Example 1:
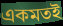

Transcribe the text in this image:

একমতই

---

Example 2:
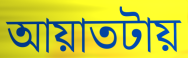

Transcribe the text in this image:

আয়াতটায়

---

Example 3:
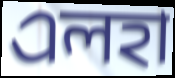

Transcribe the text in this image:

এলহা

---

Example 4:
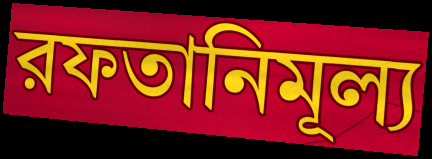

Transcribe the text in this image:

রফতানিমূল্য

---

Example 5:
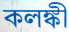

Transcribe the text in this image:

কলঙ্কী